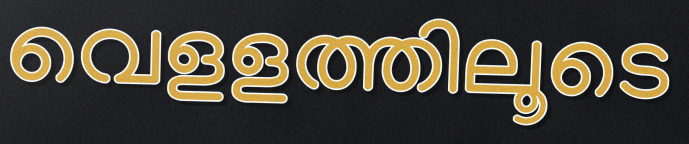
വെളളത്തിലൂടെ